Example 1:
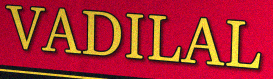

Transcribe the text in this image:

VADILAL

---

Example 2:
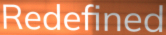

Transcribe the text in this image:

Redefined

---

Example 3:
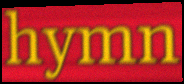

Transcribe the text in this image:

hymn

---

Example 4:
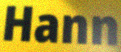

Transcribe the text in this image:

Hann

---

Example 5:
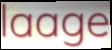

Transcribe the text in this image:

laage